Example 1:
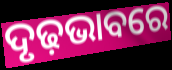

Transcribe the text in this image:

ଦୃଢ଼ଭାବରେ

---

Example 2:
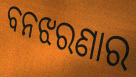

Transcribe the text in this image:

ବନଝରଣାର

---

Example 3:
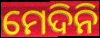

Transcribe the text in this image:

ମେଦିନି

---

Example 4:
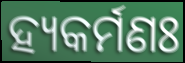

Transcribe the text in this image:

ହ୍ୟକର୍ମଣଃ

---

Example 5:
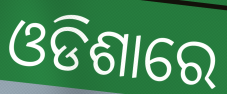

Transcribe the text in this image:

ଓଡିଶାରେ